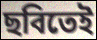
ছবিতেই